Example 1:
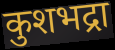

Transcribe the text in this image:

कुशभद्रा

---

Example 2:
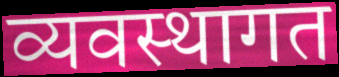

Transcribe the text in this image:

व्यवस्थागत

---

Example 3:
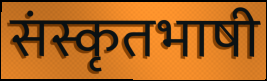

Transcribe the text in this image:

संस्कृतभाषी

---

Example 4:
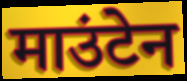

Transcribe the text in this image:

माउंटेन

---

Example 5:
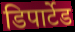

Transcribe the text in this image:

डिपार्टेड